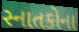
સ્નાતકોના